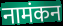
नामंकन